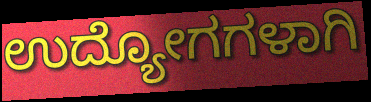
ಉದ್ಯೋಗಗಳಾಗಿ